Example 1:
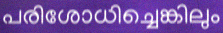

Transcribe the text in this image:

പരിശോധിച്ചെങ്കിലും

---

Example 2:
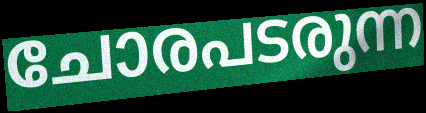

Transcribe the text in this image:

ചോരപടരുന്ന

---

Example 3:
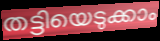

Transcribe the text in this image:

തട്ടിയെടുക്കാം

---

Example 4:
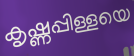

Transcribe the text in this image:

കൃഷ്ണപ്പിള്ളയെ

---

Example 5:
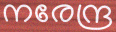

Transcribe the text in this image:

നരേന്ദ്ര